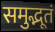
समुद्भूतं